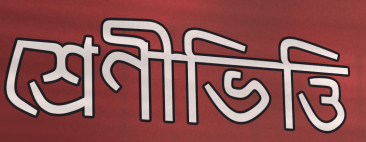
শ্রেণীভিত্তি